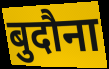
बुदौना